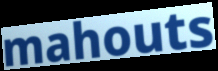
mahouts